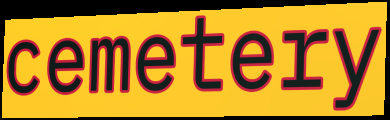
cemetery